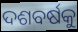
ଦଶବର୍ଷକୁ